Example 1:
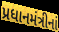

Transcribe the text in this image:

પ્રધાનમંત્રીનાં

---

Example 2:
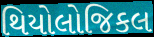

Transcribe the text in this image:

થિયોલોજિકલ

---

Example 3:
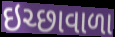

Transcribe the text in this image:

ઇચ્છાવાળા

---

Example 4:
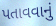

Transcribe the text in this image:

પતાવવાનું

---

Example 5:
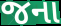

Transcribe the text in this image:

જના